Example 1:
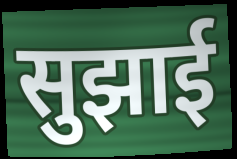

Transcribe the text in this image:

सुझाई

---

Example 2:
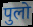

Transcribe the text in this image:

पुलो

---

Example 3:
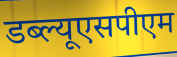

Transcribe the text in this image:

डब्ल्यूएसपीएम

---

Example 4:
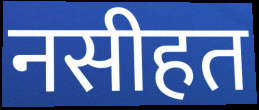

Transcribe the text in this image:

नसीहत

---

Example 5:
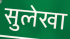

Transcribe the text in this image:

सुलेखा